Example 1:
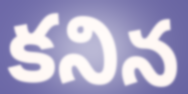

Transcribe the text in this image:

కనిన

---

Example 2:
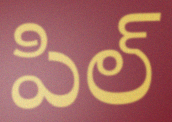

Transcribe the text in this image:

పిల్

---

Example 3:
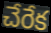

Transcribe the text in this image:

చేరేక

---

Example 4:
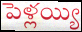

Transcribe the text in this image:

పెళ్లయ్యి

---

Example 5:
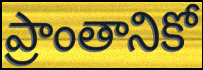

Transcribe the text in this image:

ప్రాంతానికో